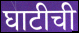
घाटीची